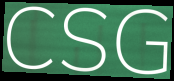
CSG